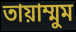
তায়াম্মুম